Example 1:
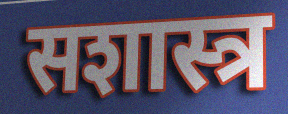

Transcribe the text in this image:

सशास्त्र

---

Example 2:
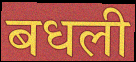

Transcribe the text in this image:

बधली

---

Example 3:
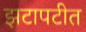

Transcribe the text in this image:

झटापटीत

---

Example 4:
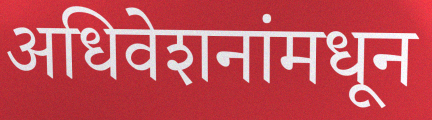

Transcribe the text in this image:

अधिवेशनांमधून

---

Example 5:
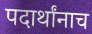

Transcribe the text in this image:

पदार्थांनाच